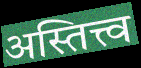
अस्तित्त्व